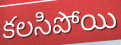
కలసిపోయి